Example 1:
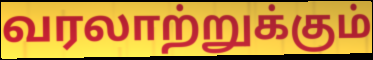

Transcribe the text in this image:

வரலாற்றுக்கும்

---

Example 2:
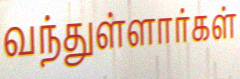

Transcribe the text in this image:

வந்துள்ளார்கள்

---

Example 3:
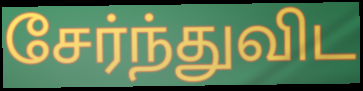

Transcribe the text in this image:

சேர்ந்துவிட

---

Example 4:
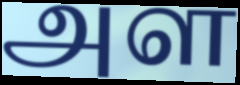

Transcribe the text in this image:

அள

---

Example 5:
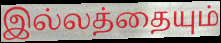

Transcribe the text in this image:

இல்லத்தையும்